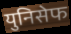
युनिसेफ